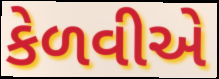
કેળવીએ